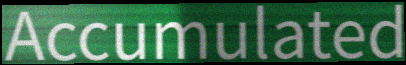
Accumulated